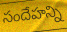
సందేహన్ని